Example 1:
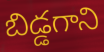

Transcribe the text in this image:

బిడ్డగాని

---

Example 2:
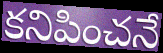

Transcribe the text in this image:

కనిపించనే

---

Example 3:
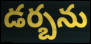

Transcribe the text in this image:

డర్బను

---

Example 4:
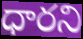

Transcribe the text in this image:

ధారని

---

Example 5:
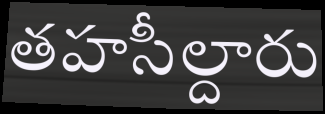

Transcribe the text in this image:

తహసీల్దారు